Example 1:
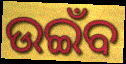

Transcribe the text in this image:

ଉଇଁବ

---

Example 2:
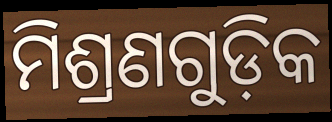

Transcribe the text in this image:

ମିଶ୍ରଣଗୁଡ଼ିକ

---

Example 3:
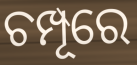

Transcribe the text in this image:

ଚମ୍ପୂରେ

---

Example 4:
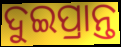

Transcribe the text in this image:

ଦୁଇପ୍ରାନ୍ତ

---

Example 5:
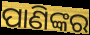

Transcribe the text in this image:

ପାଣିଙ୍କର